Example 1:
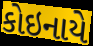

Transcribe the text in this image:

કોઇનાયે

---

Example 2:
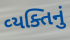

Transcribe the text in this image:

વ્‍યક્તિનું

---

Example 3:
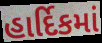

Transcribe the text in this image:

હાર્દિકમાં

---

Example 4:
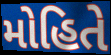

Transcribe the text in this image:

મોહિતે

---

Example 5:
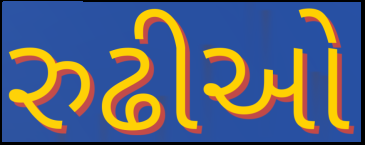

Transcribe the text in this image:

રુઢીઓ